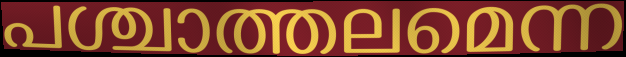
പശ്ചാത്തലമെന്ന